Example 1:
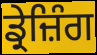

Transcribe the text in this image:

ਡ੍ਰੇਜ਼ਿੰਗ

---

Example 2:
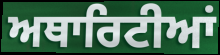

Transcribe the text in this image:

ਅਥਾਰਿਟੀਆਂ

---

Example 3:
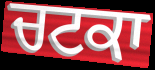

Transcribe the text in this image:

ਚਟਕਾ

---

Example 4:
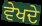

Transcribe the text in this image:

ਵੇਖਦੇ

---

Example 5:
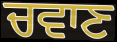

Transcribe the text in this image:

ਚਵਾਣ